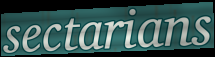
sectarians